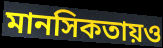
মানসিকতায়ও